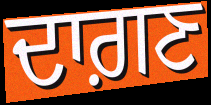
ਦਾਗ਼ਣ